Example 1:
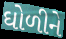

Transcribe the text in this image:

ઘોળીને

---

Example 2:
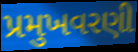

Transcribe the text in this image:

પ્રમુખવરણી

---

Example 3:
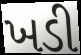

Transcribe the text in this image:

ખડી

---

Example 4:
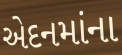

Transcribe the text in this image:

એદનમાંના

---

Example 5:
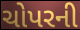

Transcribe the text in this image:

ચોપરની